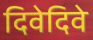
दिवेदिवे